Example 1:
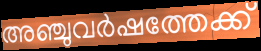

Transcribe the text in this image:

അഞ്ചുവർഷത്തേക്ക്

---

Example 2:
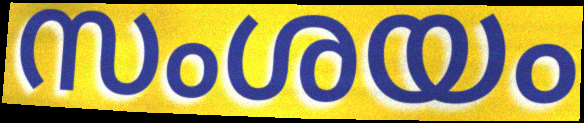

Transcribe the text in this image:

സംശയം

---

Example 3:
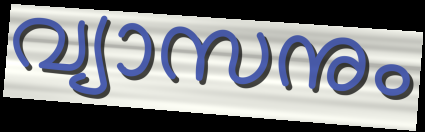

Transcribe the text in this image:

വ്യാസനും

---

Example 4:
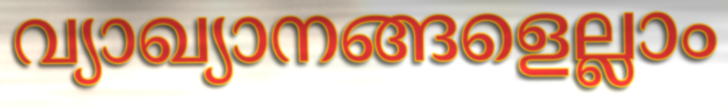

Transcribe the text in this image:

വ്യാഖ്യാനങ്ങളെല്ലാം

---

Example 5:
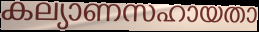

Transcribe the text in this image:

കല്യാണസഹായതാ